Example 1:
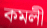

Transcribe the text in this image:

কমলী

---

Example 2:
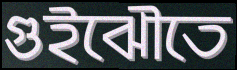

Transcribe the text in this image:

গুইঝৌতে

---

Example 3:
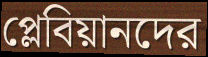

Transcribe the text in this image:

প্লেবিয়ানদের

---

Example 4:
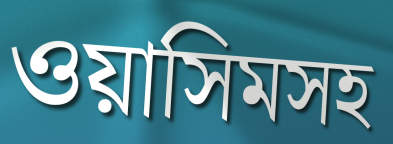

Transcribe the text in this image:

ওয়াসিমসহ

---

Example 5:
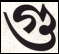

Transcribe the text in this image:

গু